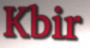
Kbir